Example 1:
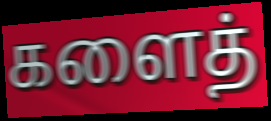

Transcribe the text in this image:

களைத்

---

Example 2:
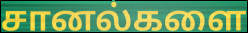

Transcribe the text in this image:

சானல்களை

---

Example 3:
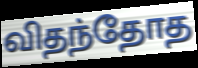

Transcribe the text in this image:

விதந்தோத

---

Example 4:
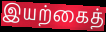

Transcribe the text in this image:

இயற்கைத்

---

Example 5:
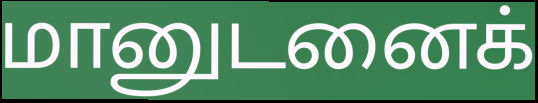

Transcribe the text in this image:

மானுடனைக்